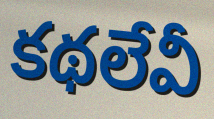
కథలేవీ